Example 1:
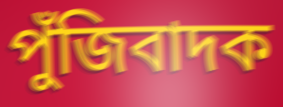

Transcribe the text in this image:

পুঁজিবাদক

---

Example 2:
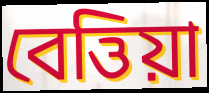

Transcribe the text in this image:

বেত্তিয়া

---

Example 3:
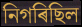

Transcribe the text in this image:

নিগৰিছিল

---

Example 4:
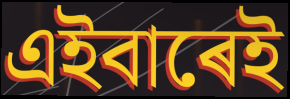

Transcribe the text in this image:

এইবাৰেই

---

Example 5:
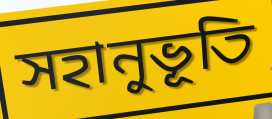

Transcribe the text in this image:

সহানুভূতি